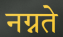
नग्नते